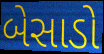
બેસાડો